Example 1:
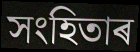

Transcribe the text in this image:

সংহিতাৰ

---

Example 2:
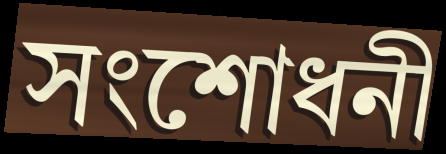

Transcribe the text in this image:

সংশোধনী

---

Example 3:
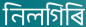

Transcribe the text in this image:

নিলগিৰি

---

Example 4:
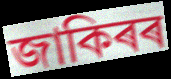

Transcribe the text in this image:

জাকিৰৰ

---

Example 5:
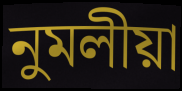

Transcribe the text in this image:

নুমলীয়া